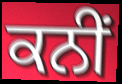
ਕਨੀਂ